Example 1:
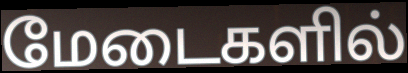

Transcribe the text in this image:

மேடைகளில்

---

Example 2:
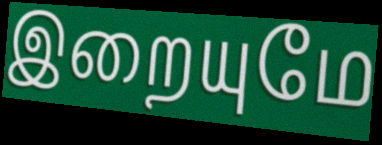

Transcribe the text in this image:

இறையுமே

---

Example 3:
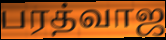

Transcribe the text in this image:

பரத்வாஜ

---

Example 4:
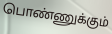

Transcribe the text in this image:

பொண்ணுக்கும்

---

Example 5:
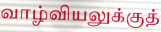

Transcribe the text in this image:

வாழ்வியலுக்குத்